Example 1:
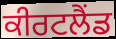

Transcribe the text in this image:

ਕੀਰਟਲੈਂਡ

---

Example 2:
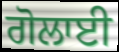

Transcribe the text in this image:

ਗੋਲਾਈ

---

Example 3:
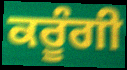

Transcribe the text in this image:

ਕਰੂੰਗੀ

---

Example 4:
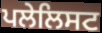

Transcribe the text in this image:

ਪਲੇਲਿਸਟ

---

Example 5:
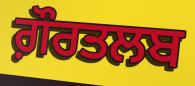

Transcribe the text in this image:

ਗ਼ੌਰਤਲਬ